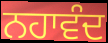
ਨਹਾਵੰਦ